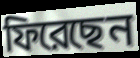
ফিরেছেন